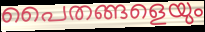
പൈതങ്ങളെയും